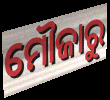
ମୌଜାରୁ